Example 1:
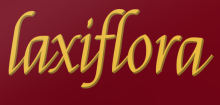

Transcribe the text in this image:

laxiflora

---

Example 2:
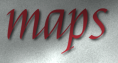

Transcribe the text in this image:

maps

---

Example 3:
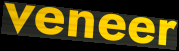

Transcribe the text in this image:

veneer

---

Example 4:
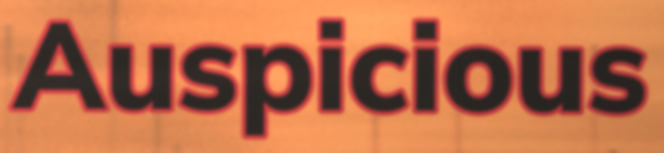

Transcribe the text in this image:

Auspicious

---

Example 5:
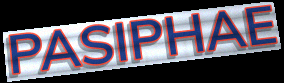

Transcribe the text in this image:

PASIPHAE